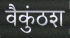
वैकुंठश